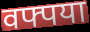
वफ्पया